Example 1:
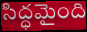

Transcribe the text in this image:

సిద్ధమైంది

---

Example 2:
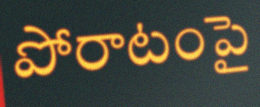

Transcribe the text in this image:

పోరాటంపై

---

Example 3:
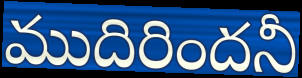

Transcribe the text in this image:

ముదిరిందనీ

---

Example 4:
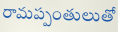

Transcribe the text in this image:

రామప్పంతులుతో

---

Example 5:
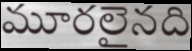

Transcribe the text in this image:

మూరలైనది